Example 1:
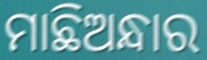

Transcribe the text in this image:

ମାଛିଅନ୍ଧାର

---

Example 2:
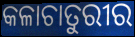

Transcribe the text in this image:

କଳାଚାତୁରୀର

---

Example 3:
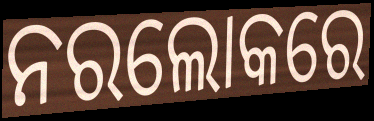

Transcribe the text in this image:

ନରଲୋକରେ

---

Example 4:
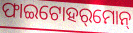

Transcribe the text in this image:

ଫାଇଟୋହର୍‌ମୋନ୍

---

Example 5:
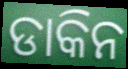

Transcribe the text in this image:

ଡାକିନ